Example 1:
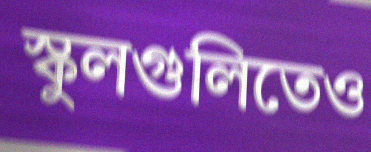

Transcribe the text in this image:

স্কুলগুলিতেও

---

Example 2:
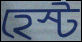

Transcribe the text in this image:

হেস্ট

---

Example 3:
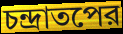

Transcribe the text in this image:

চন্দ্রাতপের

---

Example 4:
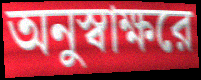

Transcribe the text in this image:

অনুস্বাক্ষরে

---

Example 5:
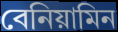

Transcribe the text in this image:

বেনিয়ামিন